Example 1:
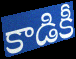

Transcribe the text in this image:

కాడికీ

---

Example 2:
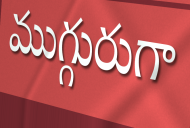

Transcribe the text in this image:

ముగ్గురుగా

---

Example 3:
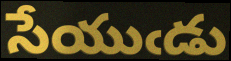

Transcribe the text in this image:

సేయుఁడు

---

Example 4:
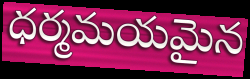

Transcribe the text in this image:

ధర్మమయమైన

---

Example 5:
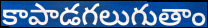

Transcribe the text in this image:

కాపాడగలుగుతాం